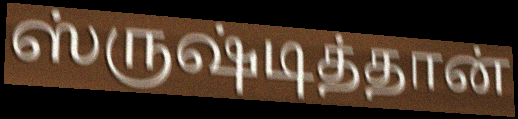
ஸ்ருஷ்டித்தான்